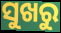
ସୁଖରୁ